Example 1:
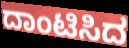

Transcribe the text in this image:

ದಾಂಟಿಸಿದ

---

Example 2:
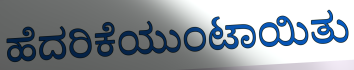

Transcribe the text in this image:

ಹೆದರಿಕೆಯುಂಟಾಯಿತು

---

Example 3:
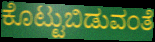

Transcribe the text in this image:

ಕೊಟ್ಟುಬಿಡುವಂತೆ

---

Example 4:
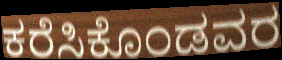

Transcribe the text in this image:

ಕರೆಸಿಕೊಂಡವರ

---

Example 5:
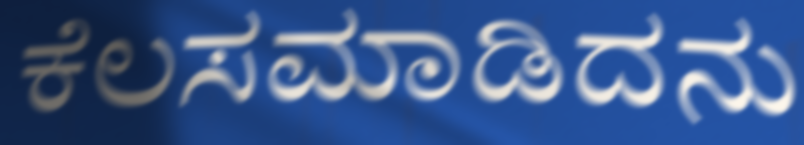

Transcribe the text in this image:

ಕೆಲಸಮಾಡಿದನು